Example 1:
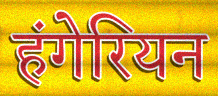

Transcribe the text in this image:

हंगेरियन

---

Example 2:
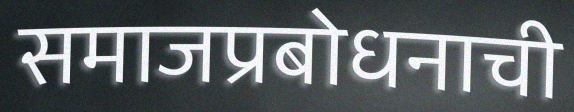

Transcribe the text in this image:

समाजप्रबोधनाची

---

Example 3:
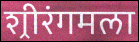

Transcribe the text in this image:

श्रीरंगमला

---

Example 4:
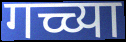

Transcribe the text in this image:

गच्च्या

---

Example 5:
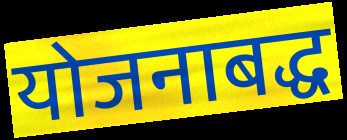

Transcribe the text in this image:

योजनाबद्ध